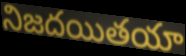
నిజదయితయా